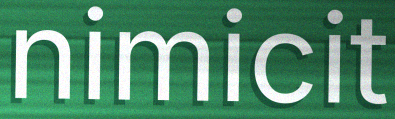
nimicit